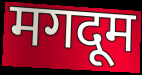
मगदूम